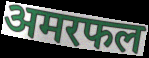
अमरफल